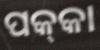
ପକ୍‍କା